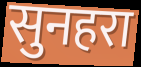
सुनहरा